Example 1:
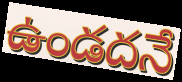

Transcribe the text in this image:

ఉండదనే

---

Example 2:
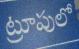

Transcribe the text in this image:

ట్రూపులో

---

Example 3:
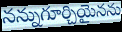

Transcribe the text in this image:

నన్నుగూర్చియైనను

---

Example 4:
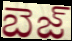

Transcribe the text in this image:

బెజ్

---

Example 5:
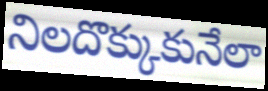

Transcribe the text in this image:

నిలదొక్కుకునేలా